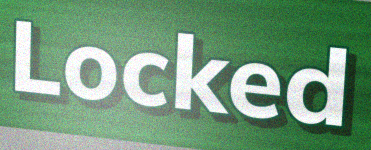
Locked